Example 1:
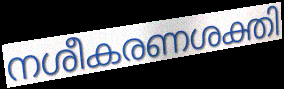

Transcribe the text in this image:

നശീകരണശക്തി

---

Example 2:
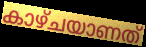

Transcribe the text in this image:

കാഴ്ചയാണത്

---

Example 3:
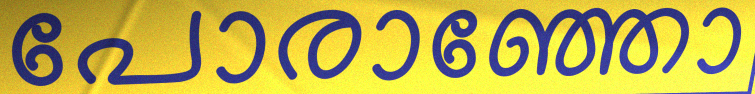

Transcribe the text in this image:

പോരാഞ്ഞോ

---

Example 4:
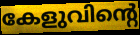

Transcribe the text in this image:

കേളുവിന്റെ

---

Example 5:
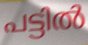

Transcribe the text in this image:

പട്ടിൽ